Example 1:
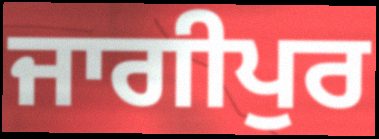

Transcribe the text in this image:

ਜਾਗੀਪੁਰ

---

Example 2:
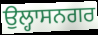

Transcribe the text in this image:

ਉਲ੍ਹਾਸਨਗਰ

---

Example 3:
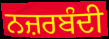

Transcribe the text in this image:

ਨਜ਼ਰਬੰਦੀ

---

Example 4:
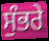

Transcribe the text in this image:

ਸੁੰਭਰੇ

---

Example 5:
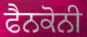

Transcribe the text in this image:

ਫੈਨਕੋਨੀ